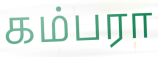
கம்பரா